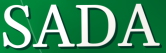
SADA